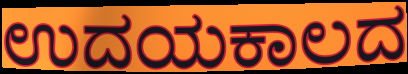
ಉದಯಕಾಲದ